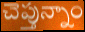
చెప్తున్నాం